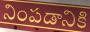
నింపడానికి